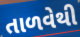
તાળવેથી